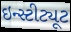
ઇન્સ્ટીટ્યૂટ